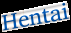
Hentai